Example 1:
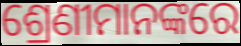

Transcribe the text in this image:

ଶ୍ରେଣୀମାନଙ୍କରେ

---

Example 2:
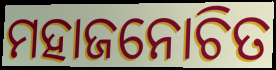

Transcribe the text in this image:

ମହାଜନୋଚିତ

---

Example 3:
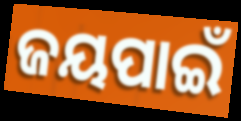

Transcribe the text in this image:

ଜୟପାଇଁ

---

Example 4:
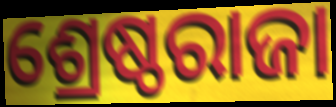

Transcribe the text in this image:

ଶ୍ରେଷ୍ଠରାଜା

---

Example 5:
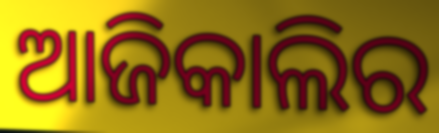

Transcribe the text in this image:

ଆଜିକାଲିର